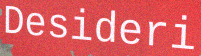
Desideri